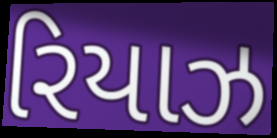
રિયાઝ